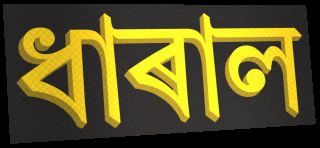
ধাৰাল